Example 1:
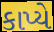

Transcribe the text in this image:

કાપ્યે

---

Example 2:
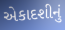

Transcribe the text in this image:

એકાદશીનું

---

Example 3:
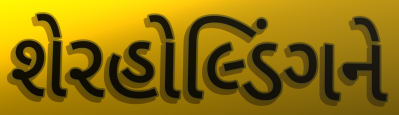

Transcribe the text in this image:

શેરહોલ્ડિંગને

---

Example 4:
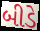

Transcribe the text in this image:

બીડે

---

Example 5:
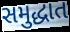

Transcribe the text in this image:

સમુદ્ધાત